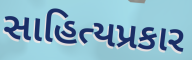
સાહિત્યપ્રકાર